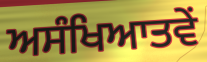
ਅਸੰਖਿਆਤਵੇਂ